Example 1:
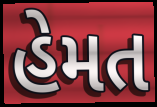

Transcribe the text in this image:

હેમત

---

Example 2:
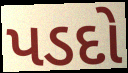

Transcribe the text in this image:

પડદો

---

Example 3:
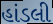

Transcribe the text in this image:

હાંડલી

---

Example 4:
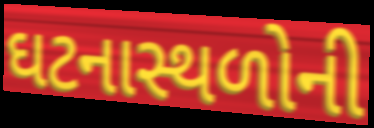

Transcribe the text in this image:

ઘટનાસ્થળોની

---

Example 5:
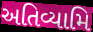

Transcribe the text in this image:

અતિવ્યામિ